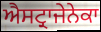
ਐਸਟ੍ਰਾਜੇਨੇਕਾ